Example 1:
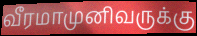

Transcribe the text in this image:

வீரமாமுனிவருக்கு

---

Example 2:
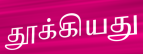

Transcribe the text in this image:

தூக்கியது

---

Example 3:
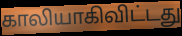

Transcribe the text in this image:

காலியாகிவிட்டது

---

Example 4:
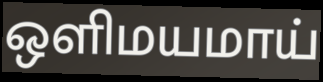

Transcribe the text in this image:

ஒளிமயமாய்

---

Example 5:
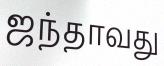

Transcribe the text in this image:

ஜந்தாவது